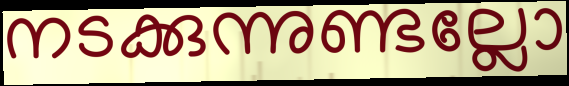
നടക്കുന്നുണ്ടല്ലോ